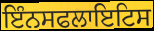
ਇੰਨਸਫਲਾਇਟਿਸ